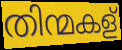
തിന്മകള്